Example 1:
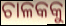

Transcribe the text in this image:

ଚାଳକକୁ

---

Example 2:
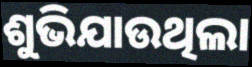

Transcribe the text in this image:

ଶୁଭିଯାଉଥିଲା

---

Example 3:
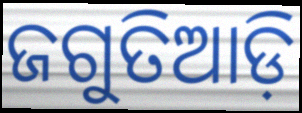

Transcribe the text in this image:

ଜଗୁତିଆଡ଼ି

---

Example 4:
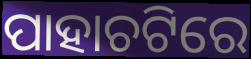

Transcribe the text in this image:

ପାହାଚଟିରେ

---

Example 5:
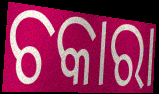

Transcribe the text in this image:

ଚକାରା